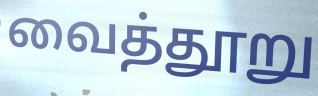
வைத்தூறு